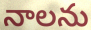
నాలను